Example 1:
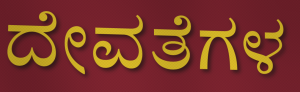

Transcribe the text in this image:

ದೇವತೆಗಳ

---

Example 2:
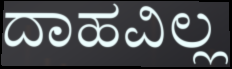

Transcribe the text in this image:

ದಾಹವಿಲ್ಲ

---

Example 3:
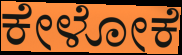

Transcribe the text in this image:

ಕೇಳೋಕೆ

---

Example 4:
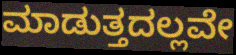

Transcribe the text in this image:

ಮಾಡುತ್ತದಲ್ಲವೇ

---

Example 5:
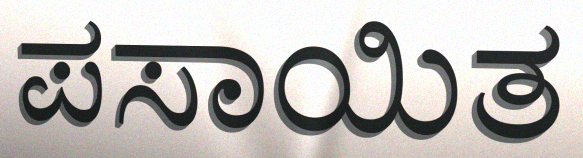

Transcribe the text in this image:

ಪಸಾಯಿತ